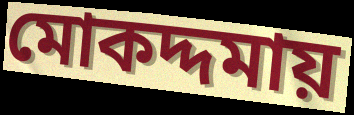
মোকদ্দমায়